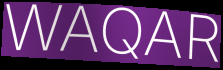
WAQAR